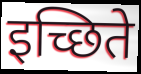
इच्छिते